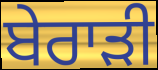
ਬੇਰਾੜੀ